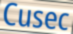
Cusec